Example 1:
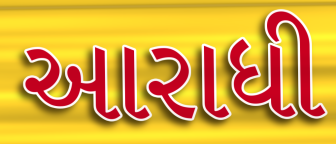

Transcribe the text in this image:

આરાધી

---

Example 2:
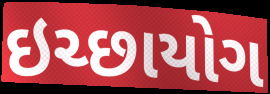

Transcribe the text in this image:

ઇચ્છાયોગ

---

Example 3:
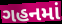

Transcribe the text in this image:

ગહનમાં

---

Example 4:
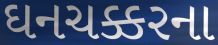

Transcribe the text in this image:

ઘનચક્કરના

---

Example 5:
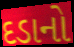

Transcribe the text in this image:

દડાનો